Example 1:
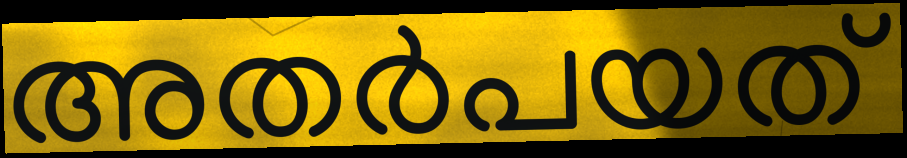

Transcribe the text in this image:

അതർപയത്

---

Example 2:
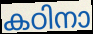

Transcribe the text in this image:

കഠിനാ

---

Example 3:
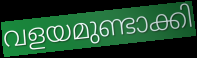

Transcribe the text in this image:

വളയമുണ്ടാക്കി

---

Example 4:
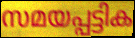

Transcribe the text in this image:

സമയപ്പട്ടിക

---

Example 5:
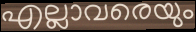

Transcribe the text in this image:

എല്ലാവരെയും